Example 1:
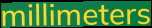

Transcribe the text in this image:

millimeters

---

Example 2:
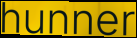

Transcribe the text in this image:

hunner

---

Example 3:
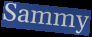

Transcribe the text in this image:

Sammy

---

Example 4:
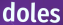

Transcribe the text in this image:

doles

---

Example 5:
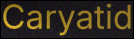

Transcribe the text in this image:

Caryatid